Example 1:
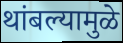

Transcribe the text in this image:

थांबल्यामुळे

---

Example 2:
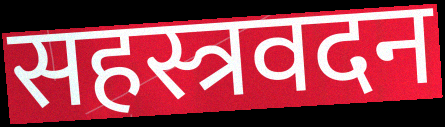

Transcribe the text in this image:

सहस्त्रवदन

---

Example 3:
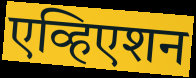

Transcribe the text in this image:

एव्हिएशन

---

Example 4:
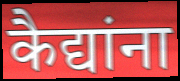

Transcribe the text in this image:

कैद्यांना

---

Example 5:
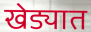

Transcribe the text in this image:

खेड्यात